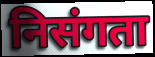
निसंगता